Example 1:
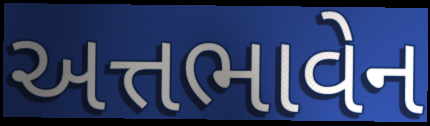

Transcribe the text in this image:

અત્તભાવેન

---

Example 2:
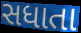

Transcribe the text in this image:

સધાતા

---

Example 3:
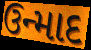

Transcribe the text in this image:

ઉન્માદ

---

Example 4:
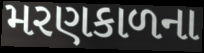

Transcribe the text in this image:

મરણકાળના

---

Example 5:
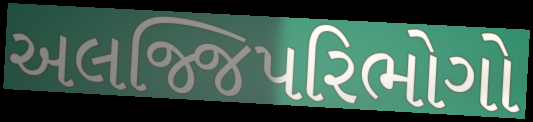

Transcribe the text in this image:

અલજ્જિપરિભોગો